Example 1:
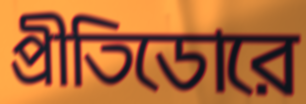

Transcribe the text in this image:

প্রীতিডোরে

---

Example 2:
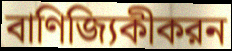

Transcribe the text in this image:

বাণিজ্যিকীকরন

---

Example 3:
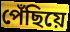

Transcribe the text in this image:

পেঁছিয়ে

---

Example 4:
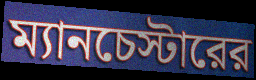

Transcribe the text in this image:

ম্যানচেস্টারের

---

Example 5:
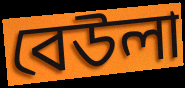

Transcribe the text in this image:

বেউলা